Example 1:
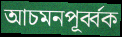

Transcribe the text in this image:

আচমনপূর্ব্বক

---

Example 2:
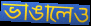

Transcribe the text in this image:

ভাঙালেও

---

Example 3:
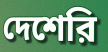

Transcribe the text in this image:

দেশেরি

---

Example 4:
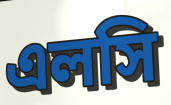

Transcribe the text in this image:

এলসি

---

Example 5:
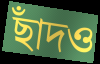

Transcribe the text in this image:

ছাঁদও